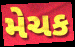
મેચક